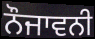
ਨੌਜਾਵਨੀ